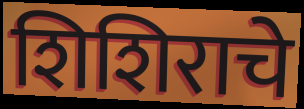
शिशिराचे